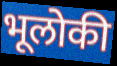
भूलोकी